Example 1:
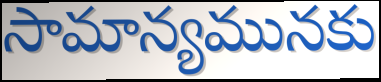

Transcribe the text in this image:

సామాన్యమునకు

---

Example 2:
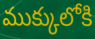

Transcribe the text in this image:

ముక్కులోకి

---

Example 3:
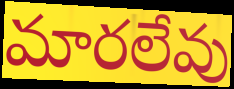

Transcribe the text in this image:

మారలేవు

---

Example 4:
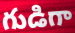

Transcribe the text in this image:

గుడిగా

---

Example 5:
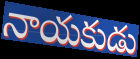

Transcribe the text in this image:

నాయకుడు